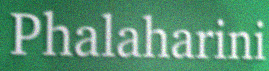
Phalaharini